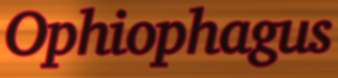
Ophiophagus